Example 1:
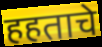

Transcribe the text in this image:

हहताचे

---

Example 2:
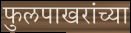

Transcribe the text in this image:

फुलपाखरांच्या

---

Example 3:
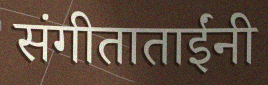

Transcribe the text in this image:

संगीताताईंनी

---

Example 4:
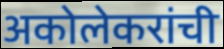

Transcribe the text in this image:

अकोलेकरांची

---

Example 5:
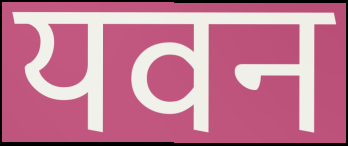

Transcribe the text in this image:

यवन